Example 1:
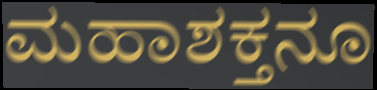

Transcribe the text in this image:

ಮಹಾಶಕ್ತನೂ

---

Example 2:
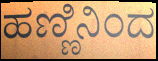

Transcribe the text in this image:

ಹಣ್ಣಿನಿಂದ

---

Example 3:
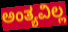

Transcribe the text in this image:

ಅಂತ್ಯವಿಲ್ಲ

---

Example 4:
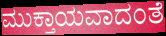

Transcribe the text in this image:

ಮುಕ್ತಾಯವಾದಂತೆ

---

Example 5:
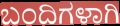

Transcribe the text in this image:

ಬಂದಿಗಳಾಗಿ